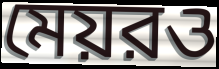
মেয়রও